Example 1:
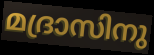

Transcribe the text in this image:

മദ്രാസിനു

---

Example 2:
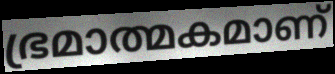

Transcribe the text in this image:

ഭ്രമാത്മകമാണ്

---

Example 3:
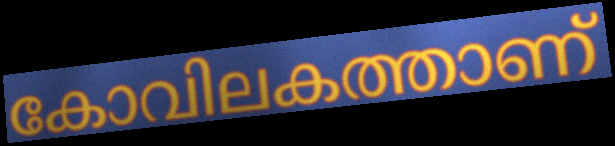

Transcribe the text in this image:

കോവിലകത്താണ്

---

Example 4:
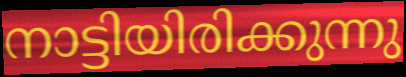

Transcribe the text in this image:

നാട്ടിയിരിക്കുന്നു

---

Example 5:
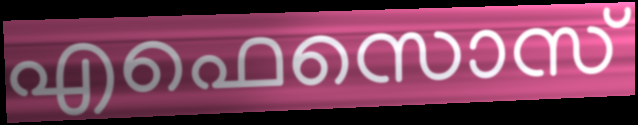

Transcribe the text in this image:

എഫെസൊസ്